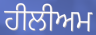
ਹੀਲੀਅਮ